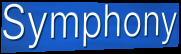
Symphony